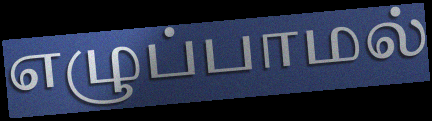
எழுப்பாமல்